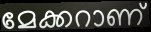
മേക്കറാണ്